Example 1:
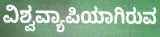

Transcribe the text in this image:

ವಿಶ್ವವ್ಯಾಪಿಯಾಗಿರುವ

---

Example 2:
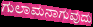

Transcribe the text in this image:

ಗುಲಾಮನಾಗುವುದು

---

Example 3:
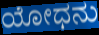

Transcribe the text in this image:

ಯೋಧನು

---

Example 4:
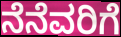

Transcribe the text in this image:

ನೆನೆವರಿಗೆ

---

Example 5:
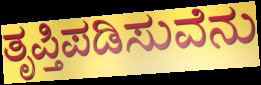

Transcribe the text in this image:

ತೃಪ್ತಿಪಡಿಸುವೆನು